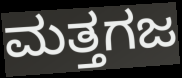
ಮತ್ತಗಜ